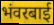
भंवरबाई